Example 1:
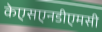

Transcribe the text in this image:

केएसएनडीएमसी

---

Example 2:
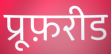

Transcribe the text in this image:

प्रूफ़रीड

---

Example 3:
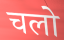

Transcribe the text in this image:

चलो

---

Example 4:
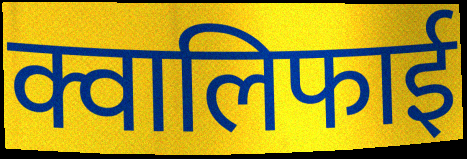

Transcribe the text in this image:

क्वालिफाई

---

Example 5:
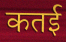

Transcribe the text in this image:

कतई